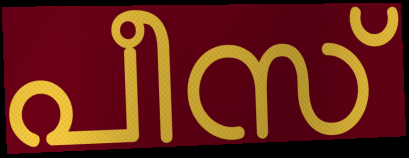
പീസ്